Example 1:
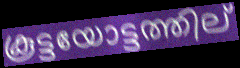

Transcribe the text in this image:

കൂട്ടയോട്ടത്തില്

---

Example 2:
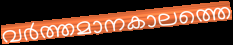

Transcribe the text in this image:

വർത്തമാനകാലത്തെ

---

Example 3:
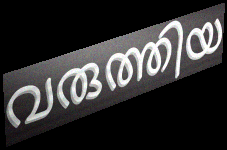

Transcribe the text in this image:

വരുത്തിയ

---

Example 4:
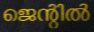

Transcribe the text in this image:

ജെന്റിൽ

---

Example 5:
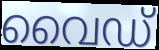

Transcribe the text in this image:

വൈഡ്